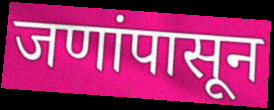
जणांपासून